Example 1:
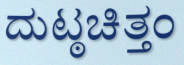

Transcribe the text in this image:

ದುಟ್ಠಚಿತ್ತಂ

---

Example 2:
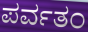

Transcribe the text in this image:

ಪರ್ವತಂ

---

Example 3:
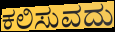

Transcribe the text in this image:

ಕಲಿಸುವದು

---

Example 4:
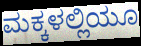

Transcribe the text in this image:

ಮಕ್ಕಳಲ್ಲಿಯೂ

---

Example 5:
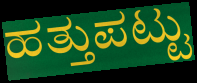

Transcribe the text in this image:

ಹತ್ತುಪಟ್ಟು